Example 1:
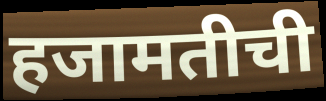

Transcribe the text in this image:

हजामतीची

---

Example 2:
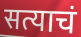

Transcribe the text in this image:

सत्याचं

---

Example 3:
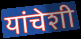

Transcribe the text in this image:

यांचेशी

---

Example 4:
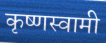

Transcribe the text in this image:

कृष्णस्वामी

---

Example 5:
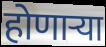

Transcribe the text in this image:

होणार्‍या